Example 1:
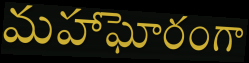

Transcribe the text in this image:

మహాఘోరంగా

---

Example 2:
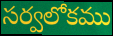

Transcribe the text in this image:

సర్వలోకము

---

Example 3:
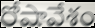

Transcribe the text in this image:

రోషావేశం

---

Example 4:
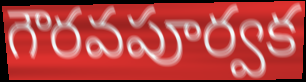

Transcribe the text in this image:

గౌరవపూర్వక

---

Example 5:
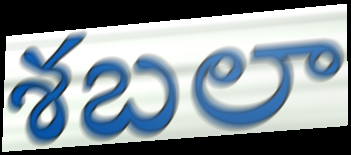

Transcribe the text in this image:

శబలా